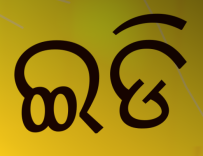
ଇଡି